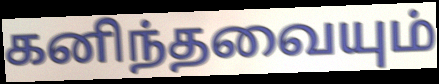
கனிந்தவையும்